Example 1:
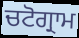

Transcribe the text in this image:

ਚਟੋਗ੍ਰਾਮ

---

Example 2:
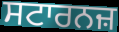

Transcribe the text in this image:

ਸਟਾਰਨਜ਼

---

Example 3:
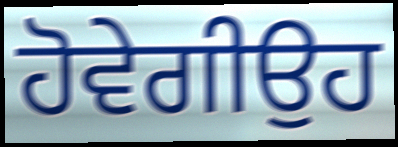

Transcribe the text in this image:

ਹੋਵੇਗੀਉਹ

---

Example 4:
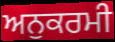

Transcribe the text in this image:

ਅਨੁਕਰਮੀ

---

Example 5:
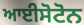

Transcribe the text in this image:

ਆਈਸੋਟੋਨ